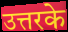
उत्तरके